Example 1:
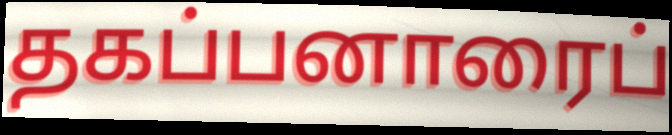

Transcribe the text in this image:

தகப்பனாரைப்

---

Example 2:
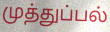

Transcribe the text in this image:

முத்துப்பல்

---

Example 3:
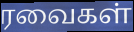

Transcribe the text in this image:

ரவைகள்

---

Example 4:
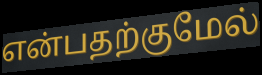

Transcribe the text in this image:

என்பதற்குமேல்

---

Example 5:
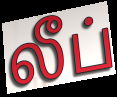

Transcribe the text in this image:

லீப்